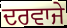
ਦਰਵਾਜੇ